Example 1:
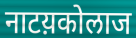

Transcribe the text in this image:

नाटय़कोलाज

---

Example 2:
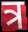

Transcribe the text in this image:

त्र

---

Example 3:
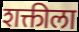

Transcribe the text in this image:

शक्तीला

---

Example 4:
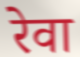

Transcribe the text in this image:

रेवा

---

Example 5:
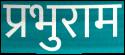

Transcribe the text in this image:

प्रभुराम